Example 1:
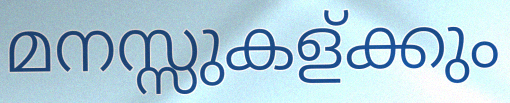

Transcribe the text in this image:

മനസ്സുകള്ക്കും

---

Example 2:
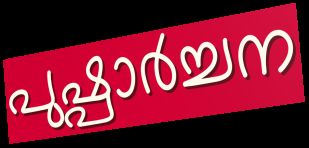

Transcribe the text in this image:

പുഷ്പാർച്ചന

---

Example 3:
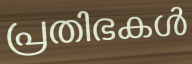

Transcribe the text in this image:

പ്രതിഭകൾ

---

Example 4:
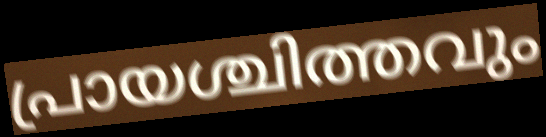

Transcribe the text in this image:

പ്രായശ്ചിത്തവും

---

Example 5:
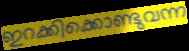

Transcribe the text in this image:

ഇറക്കിക്കൊണ്ടുവന്ന